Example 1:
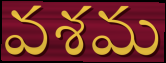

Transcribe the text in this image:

వశమ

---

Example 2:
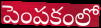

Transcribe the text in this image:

పెంపకంలో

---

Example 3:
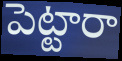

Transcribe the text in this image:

పెట్టారా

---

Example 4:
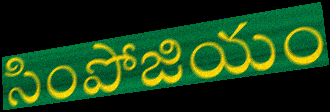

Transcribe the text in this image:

సింపోజియం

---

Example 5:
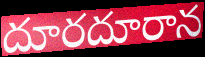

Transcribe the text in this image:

దూరదూరాన